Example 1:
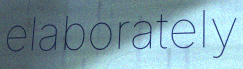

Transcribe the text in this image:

elaborately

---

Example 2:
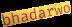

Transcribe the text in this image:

bhadarwo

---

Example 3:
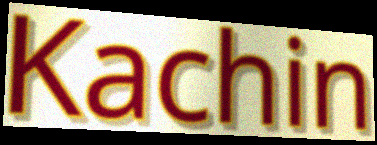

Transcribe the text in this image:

Kachin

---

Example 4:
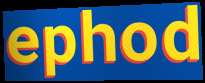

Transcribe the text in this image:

ephod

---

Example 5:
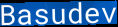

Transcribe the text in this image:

Basudev